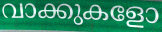
വാക്കുകളോ